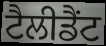
ਟੈਲੀਡੈਂਟ